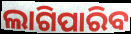
ଲାଗିପାରିବ